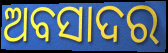
ଅବସାଦର